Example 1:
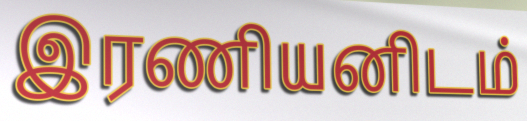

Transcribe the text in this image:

இரணியனிடம்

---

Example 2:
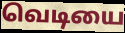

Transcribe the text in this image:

வெடியை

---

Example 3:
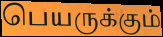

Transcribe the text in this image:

பெயருக்கும்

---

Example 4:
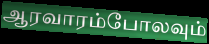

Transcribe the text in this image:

ஆரவாரம்போலவும்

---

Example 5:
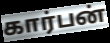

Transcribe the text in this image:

கார்பன்